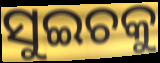
ସୁଇଚକୁ